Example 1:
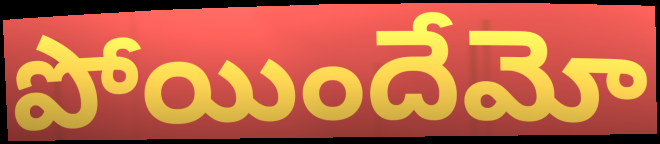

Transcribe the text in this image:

పోయిందేమో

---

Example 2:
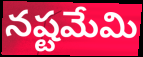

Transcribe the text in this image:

నష్టమేమి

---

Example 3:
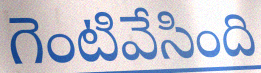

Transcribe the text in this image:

గెంటివేసింది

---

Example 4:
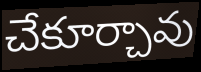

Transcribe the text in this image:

చేకూర్చావు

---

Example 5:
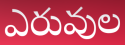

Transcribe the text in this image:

ఎరువుల